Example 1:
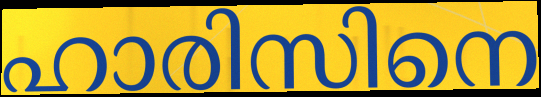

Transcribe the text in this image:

ഹാരിസിനെ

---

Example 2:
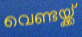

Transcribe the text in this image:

വെണ്ടയ്ക്ക്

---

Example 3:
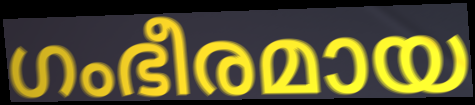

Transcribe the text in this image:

ഗംഭീരമായ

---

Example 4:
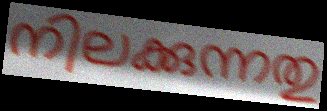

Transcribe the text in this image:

നിലക്കുന്നതു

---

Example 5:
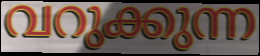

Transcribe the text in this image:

വറുക്കുന്ന